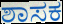
ಶಾಸಕ